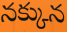
నక్కున